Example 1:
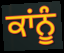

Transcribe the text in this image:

ਕਾਂਨੂੰ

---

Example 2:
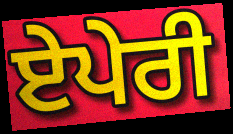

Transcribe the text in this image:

ਏਪੇਰੀ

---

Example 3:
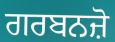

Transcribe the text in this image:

ਗਰਬਨਜ਼ੋ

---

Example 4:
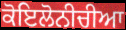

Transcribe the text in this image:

ਕੋਇਲੋਨੀਚੀਆ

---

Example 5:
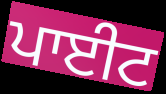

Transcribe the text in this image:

ਪਾਈਟ